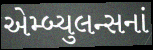
એમ્બ્યુલન્સનાં